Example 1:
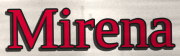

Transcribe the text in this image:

Mirena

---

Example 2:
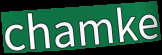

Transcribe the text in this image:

chamke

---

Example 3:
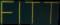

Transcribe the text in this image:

FITT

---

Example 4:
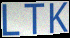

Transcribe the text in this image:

LTK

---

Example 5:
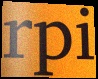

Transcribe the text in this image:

rpi